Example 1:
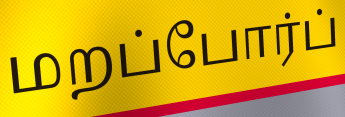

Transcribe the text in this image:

மறப்போர்ப்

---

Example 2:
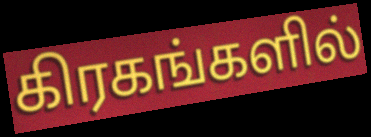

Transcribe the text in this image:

கிரகங்களில்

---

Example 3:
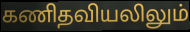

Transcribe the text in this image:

கணிதவியலிலும்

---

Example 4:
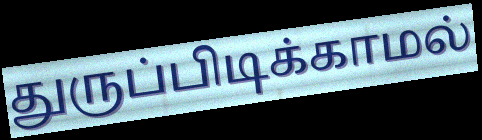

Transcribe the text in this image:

துருப்பிடிக்காமல்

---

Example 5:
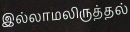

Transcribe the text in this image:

இல்லாமலிருத்தல்